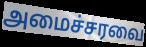
அமைச்சரவை